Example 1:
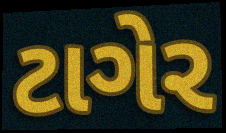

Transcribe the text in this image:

ટાગેર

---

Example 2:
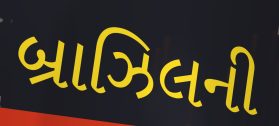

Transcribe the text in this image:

બ્રાઝિલની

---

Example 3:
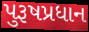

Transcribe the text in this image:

પુરૂષપ્રધાન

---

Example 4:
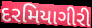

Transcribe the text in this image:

દરમિયાગીરી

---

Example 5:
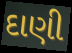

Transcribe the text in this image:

દાણી